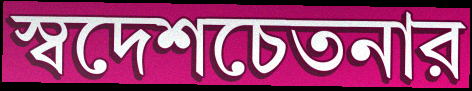
স্বদেশচেতনার